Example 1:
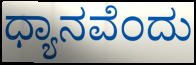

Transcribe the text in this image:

ಧ್ಯಾನವೆಂದು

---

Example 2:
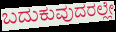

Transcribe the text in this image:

ಬದುಕುವುದರಲ್ಲೇ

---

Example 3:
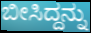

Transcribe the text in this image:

ಬೀಸಿದ್ದನ್ನು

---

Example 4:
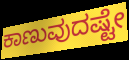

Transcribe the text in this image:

ಕಾಣುವುದಷ್ಟೇ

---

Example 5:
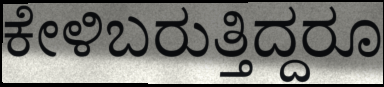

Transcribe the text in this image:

ಕೇಳಿಬರುತ್ತಿದ್ದರೂ